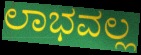
ಲಾಭವಲ್ಲ